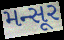
મન્સૂર